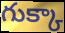
గుక్కా